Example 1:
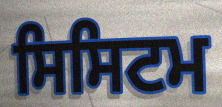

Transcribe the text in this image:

ਸਿਸਿਟਮ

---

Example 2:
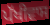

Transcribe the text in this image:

ਪੱਖੀਵਾਸ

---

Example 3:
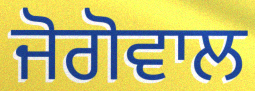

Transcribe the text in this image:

ਜੋਗੋਵਾਲ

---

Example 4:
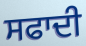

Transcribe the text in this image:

ਸਫਾਦੀ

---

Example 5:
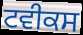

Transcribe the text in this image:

ਟਵੀਕਸ